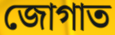
জোগাত